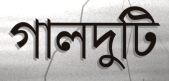
গালদুটি